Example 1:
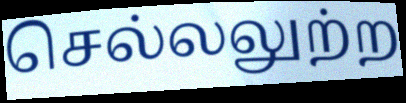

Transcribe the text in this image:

செல்லலுற்ற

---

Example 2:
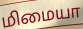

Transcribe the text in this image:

மிமையா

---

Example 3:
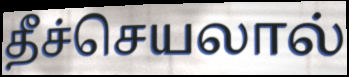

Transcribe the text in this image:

தீச்செயலால்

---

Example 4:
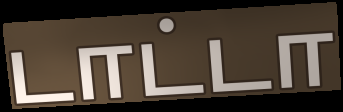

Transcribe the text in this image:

டாட்டா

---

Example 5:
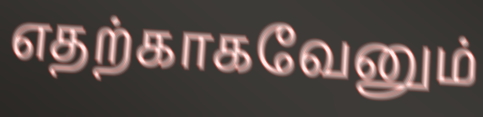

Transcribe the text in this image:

எதற்காகவேனும்